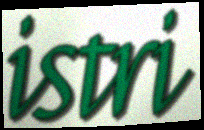
istri